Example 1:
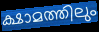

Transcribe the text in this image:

ക്ഷാമത്തിലും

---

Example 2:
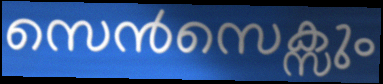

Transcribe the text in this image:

സെൻസെക്സും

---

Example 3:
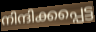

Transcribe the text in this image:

നിന്ദിക്കപ്പെട്ട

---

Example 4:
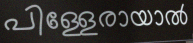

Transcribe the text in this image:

പിള്ളേരായാൽ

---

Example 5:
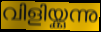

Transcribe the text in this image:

വിളിയ്ക്കുന്നു